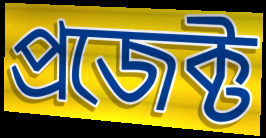
প্ৰজেক্ট